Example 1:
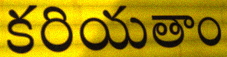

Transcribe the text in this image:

కరియతాం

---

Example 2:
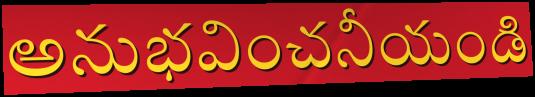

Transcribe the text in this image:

అనుభవించనీయండి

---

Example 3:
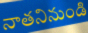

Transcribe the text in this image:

నాతనినుండి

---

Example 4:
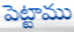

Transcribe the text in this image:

పెట్టాము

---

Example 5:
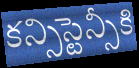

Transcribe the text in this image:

కన్సిస్టెన్సీకి